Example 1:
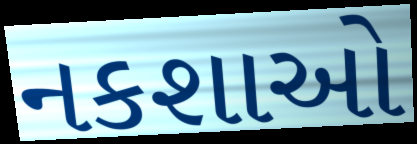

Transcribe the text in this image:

નકશાઓ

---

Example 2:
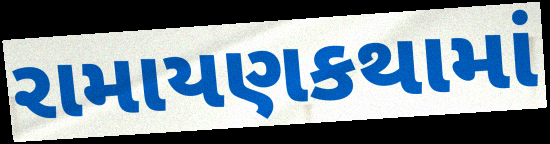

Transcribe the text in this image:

રામાયણકથામાં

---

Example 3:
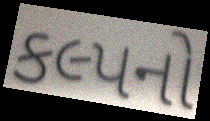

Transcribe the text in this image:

કલ્પનો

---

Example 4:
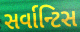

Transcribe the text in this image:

સર્વાન્ટિસ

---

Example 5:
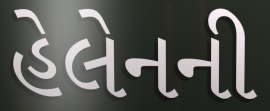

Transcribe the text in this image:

હેલેનની